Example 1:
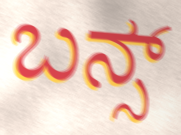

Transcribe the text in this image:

ಬನ್ಸ್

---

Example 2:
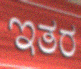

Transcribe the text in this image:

ಇತರ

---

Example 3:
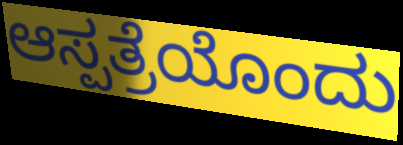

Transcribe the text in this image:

ಆಸ್ಪತ್ರೆಯೊಂದು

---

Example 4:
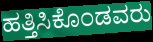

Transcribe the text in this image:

ಹತ್ತಿಸಿಕೊಂಡವರು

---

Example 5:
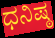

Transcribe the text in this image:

ಧನಿಷ್ಠ